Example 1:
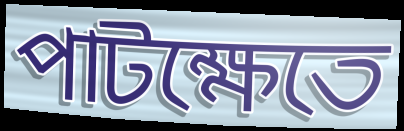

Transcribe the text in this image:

পাটক্ষেতে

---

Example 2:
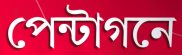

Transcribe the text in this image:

পেন্টাগনে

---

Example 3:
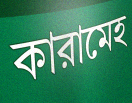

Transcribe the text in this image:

কারামেহ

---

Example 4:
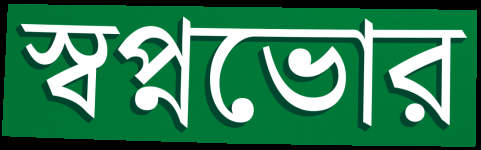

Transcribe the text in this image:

স্বপ্নভোর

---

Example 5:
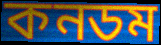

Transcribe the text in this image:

কনডম